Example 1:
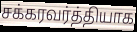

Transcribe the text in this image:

சக்கரவர்த்தியாக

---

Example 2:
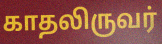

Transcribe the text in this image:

காதலிருவர்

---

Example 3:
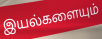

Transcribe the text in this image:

இயல்களையும்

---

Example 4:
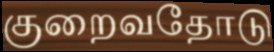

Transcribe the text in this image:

குறைவதோடு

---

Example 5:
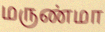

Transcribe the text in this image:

மருண்மா